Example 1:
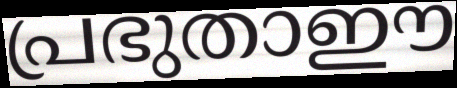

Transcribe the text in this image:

പ്രഭുതാഈ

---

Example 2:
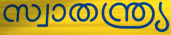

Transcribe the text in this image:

സ്വാതന്ത്ര്യ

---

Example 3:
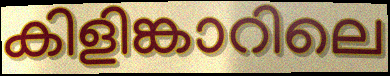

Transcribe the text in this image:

കിളിങ്കാറിലെ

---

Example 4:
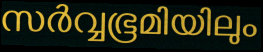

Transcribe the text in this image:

സർവ്വഭൂമിയിലും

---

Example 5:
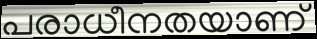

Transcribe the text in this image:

പരാധീനതയാണ്